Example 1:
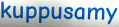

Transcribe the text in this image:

kuppusamy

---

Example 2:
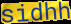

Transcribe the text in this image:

sidhh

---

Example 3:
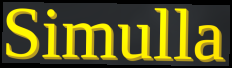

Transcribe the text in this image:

Simulla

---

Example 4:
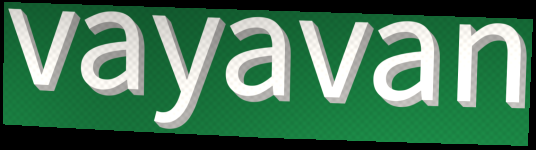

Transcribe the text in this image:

vayavan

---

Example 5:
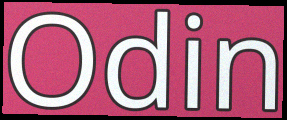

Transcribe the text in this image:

Odin